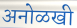
अनोळखी